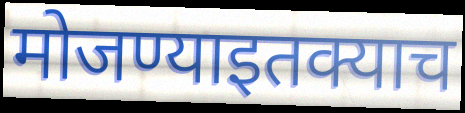
मोजण्याइतक्याच